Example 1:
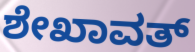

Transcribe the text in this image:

ಶೇಖಾವತ್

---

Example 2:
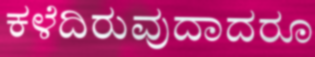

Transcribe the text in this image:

ಕಳೆದಿರುವುದಾದರೂ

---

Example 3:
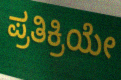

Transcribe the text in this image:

ಪ್ರತಿಕ್ರಿಯೇ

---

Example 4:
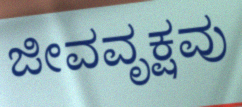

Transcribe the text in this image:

ಜೀವವೃಕ್ಷವು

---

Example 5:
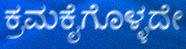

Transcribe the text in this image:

ಕ್ರಮಕೈಗೊಳ್ಳದೇ